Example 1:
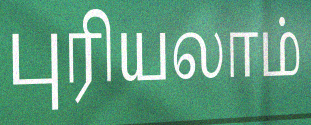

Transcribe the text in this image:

புரியலாம்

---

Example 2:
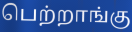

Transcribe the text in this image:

பெற்றாங்கு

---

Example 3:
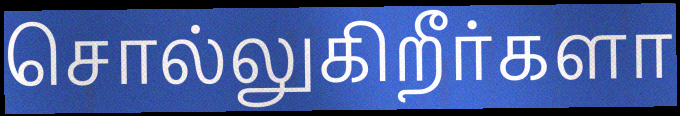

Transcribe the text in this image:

சொல்லுகிறீர்களா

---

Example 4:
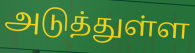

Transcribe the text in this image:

அடுத்துள்ள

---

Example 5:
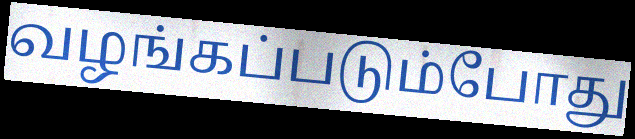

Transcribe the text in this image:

வழங்கப்படும்போது